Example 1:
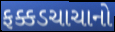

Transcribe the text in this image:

ફક્કડચાચાનો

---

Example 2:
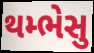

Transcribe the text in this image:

થમ્ભેસુ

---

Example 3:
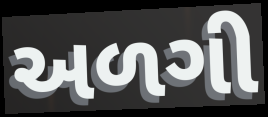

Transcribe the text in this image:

અળગી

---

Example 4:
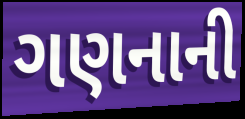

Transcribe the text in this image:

ગણનાની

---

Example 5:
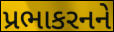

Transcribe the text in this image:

પ્રભાકરનને